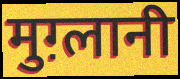
मुग़्लानी